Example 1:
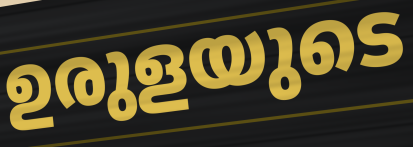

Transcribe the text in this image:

ഉരുളയുടെ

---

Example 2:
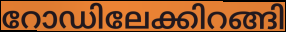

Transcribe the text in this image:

റോഡിലേക്കിറങ്ങി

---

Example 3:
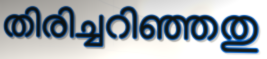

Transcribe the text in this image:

തിരിച്ചറിഞ്ഞതു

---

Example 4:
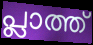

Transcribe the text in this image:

പ്ലാത്ത്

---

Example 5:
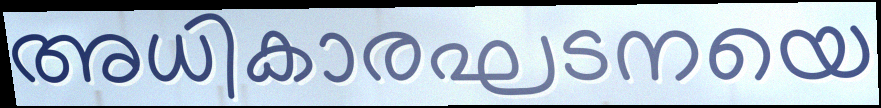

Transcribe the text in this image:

അധികാരഘടനയെ